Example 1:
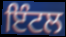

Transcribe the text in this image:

ਇੰਟਲ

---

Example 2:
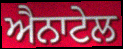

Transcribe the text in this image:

ਐਨਾਟੇਲ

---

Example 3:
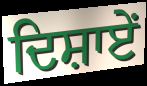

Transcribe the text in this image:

ਦਿਸ਼ਾਏਂ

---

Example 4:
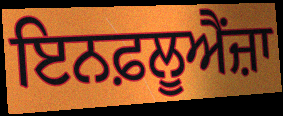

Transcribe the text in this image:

ਇਨਫ਼ਲੂਐਂਜ਼ਾ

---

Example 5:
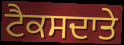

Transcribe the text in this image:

ਟੈਕਸਦਾਤੇ